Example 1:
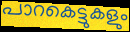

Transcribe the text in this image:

പാറകെട്ടുകളും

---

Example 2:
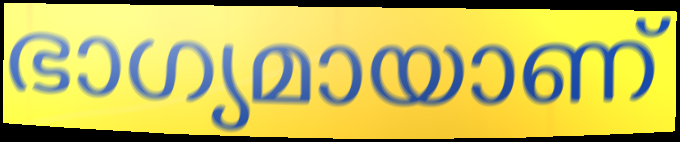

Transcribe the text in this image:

ഭാഗ്യമായാണ്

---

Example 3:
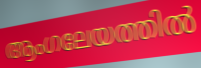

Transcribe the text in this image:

ആംഗലേയത്തിൽ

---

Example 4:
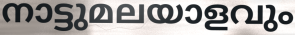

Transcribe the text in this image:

നാട്ടുമലയാളവും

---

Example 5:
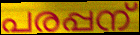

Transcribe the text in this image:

പരപ്പന്